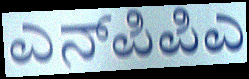
ಎನ್‌ಪಿಪಿಎ